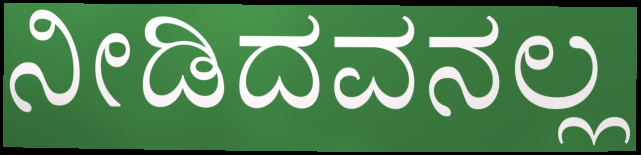
ನೀಡಿದವನಲ್ಲ